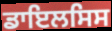
ਡਾਇਲਸਿਸ